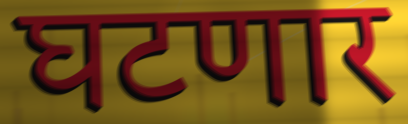
घटणार